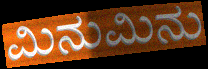
ಮಿನುಮಿನು